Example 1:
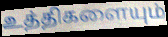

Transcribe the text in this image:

உத்திகளையும்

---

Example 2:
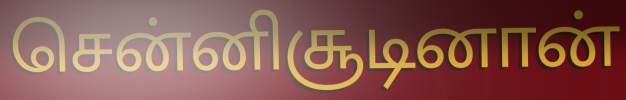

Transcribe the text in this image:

சென்னிசூடினான்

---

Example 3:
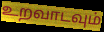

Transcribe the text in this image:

உறவாடவும்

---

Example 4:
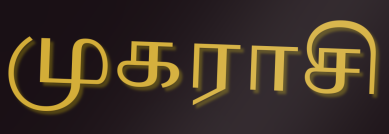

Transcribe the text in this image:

முகராசி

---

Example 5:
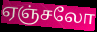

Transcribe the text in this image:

ஏஞ்சலோ